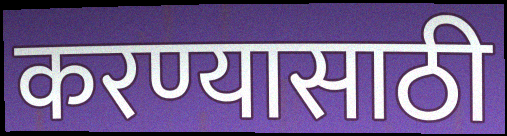
करण्‍यासाठी